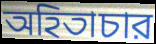
অহিতাচার